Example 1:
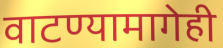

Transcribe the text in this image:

वाटण्यामागेही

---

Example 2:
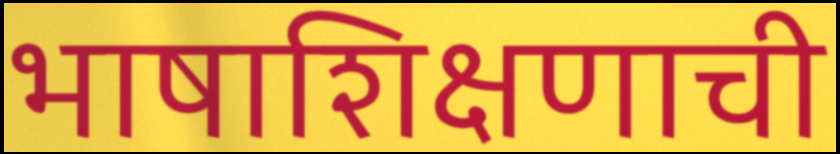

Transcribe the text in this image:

भाषाशिक्षणाची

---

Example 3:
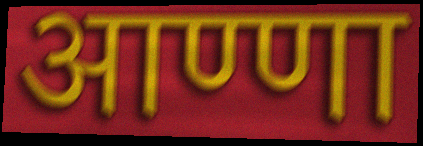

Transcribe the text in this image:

आण्णा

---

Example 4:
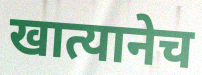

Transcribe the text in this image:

खात्यानेच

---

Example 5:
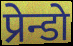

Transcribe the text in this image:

प्रेन्डो